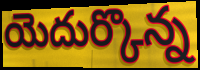
యెదుర్కొన్న